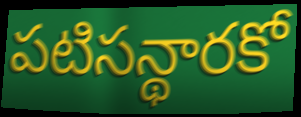
పటిసన్థారకో